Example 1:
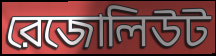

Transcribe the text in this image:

রেজোলিউট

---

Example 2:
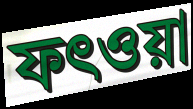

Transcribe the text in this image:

ফৎওয়া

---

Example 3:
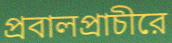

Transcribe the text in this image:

প্রবালপ্রাচীরে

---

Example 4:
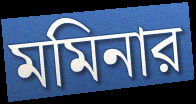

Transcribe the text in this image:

মমিনার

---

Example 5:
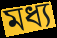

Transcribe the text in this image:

মধ্য